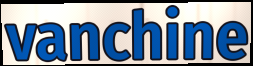
vanchine